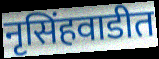
नृसिंहवाडीत